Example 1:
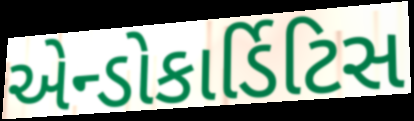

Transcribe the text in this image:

એન્ડોકાર્ડિટિસ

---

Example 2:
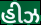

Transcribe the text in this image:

હીઝ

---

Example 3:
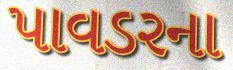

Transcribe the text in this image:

પાવડરના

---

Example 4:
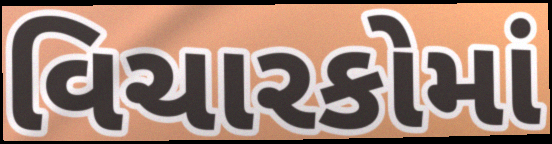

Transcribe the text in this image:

વિચારકોમાં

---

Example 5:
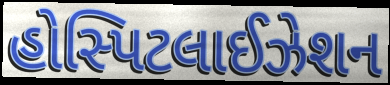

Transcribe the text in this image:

હોસ્પિટલાઈઝેશન